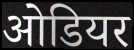
ओडियर